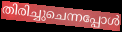
തിരിച്ചുചെന്നപ്പോൾ